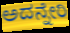
ಅದನ್ನೇರಿ